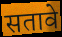
सतावे